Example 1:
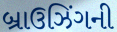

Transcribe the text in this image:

બ્રાઉઝિંગની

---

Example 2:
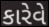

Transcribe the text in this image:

કારેવે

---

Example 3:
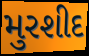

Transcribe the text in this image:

મુરશીદ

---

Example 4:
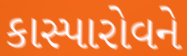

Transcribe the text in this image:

કાસ્પારોવને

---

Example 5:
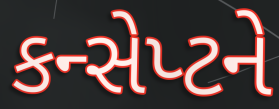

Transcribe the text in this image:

કન્સેપ્ટને